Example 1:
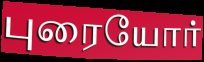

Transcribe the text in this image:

புரையோர்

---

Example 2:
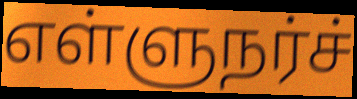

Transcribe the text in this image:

எள்ளுநர்ச்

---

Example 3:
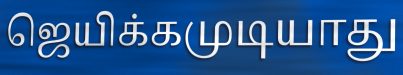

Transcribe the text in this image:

ஜெயிக்கமுடியாது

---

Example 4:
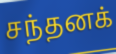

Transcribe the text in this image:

சந்தனக்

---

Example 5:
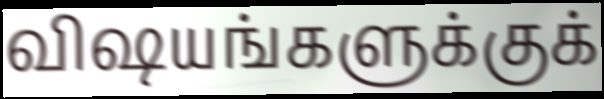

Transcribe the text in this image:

விஷயங்களுக்குக்